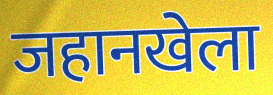
जहानखेला